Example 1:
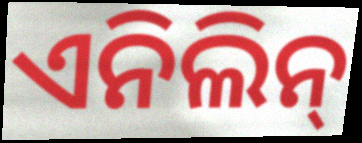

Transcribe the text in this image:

ଏନିଲିନ୍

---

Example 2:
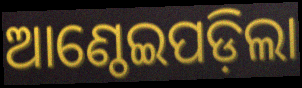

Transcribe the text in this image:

ଆଣ୍ଠେଇପଡ଼ିଲା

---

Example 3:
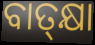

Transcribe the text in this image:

ବାତ୍କ୍ଷା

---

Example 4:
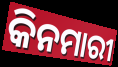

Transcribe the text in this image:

କିନମାରୀ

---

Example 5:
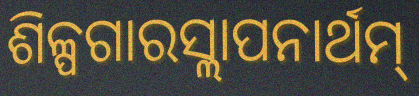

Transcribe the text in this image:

ଶିଳ୍ପଗାରସ୍ଲାପନାର୍ଥମ୍